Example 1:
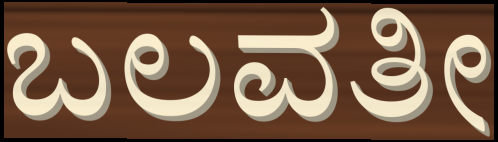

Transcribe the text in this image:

ಬಲವತೀ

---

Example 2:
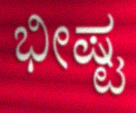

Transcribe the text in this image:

ಭೀಷ್ಟ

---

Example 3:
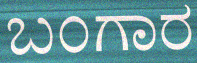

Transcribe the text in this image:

ಬಂಗಾರ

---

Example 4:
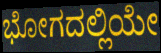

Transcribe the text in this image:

ಭೋಗದಲ್ಲಿಯೇ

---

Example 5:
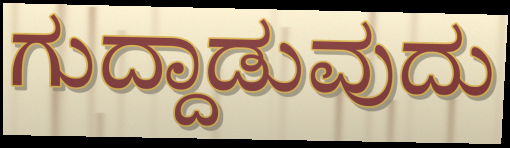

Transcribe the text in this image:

ಗುದ್ದಾಡುವುದು